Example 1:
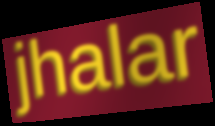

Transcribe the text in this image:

jhalar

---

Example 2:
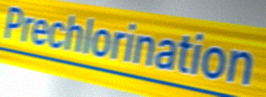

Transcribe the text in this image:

Prechlorination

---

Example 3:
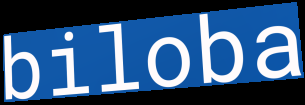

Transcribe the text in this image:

biloba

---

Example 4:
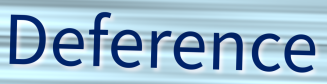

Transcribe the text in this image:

Deference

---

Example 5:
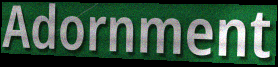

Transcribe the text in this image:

Adornment